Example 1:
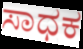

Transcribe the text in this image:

ಸಾಧಕ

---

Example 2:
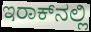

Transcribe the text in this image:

ಇರಾಕ್‌ನಲ್ಲಿ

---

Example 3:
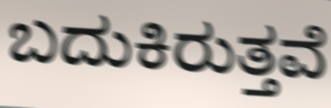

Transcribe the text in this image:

ಬದುಕಿರುತ್ತವೆ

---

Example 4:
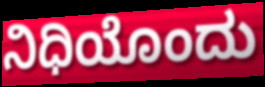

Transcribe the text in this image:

ನಿಧಿಯೊಂದು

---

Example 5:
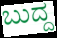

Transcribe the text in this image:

ಬುದ್ದ